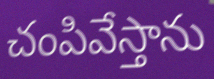
చంపివేస్తాను